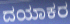
ದಯಾಕರ